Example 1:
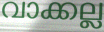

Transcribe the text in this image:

വാക്കല്ല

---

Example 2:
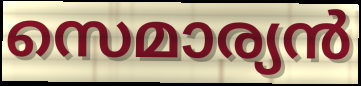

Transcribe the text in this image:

സെമാര്യൻ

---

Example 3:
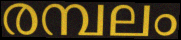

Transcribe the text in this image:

രമ്പലം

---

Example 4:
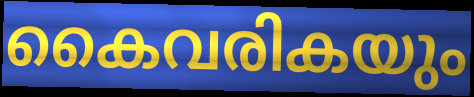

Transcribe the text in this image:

കൈവരികയും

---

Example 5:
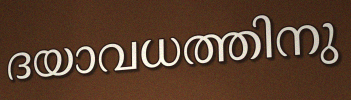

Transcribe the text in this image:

ദയാവധത്തിനു